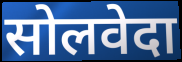
सोलवेदा